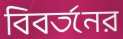
বিবর্তনের